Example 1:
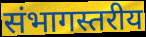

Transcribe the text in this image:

संभागस्तरीय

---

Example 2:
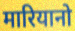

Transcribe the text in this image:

मारियानो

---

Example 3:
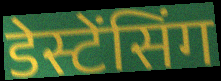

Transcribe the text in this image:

डेस्टेंसिंग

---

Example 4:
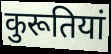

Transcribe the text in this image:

कुरूतियां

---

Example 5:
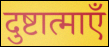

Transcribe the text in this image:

दुष्टात्माएँ